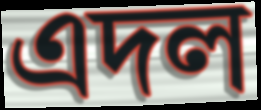
এদল